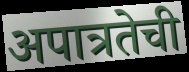
अपात्रतेची